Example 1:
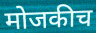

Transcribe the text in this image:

मोजकीच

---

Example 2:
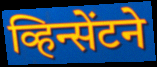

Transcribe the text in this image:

व्हिन्सेंटने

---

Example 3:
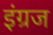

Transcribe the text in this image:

इंग्रज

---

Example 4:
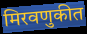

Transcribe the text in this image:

मिरवणुकीत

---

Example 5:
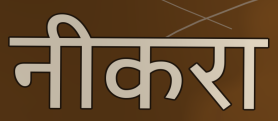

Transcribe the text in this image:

नीकरा